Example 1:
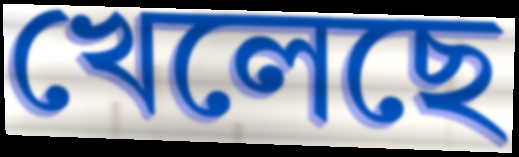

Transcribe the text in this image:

খেলেছে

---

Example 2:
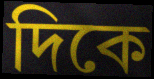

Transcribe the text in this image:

দিকে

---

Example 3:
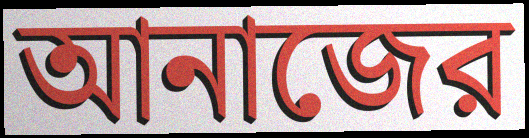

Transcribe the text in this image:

আনাজের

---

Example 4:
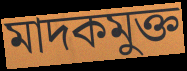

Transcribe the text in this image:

মাদকমুক্ত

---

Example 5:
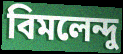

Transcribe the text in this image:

বিমলেন্দু